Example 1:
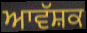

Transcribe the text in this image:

ਆਵੱਸ਼ਕ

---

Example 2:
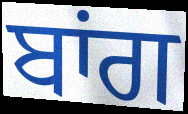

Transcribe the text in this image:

ਬਾਂਗ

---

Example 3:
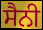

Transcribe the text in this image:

ਸੈਨੀ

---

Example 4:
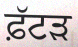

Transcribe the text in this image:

ਫ਼ੱਟੜ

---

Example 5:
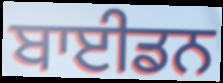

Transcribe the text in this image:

ਬਾਈਡਨ